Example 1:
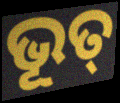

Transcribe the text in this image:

ଭୂତ୍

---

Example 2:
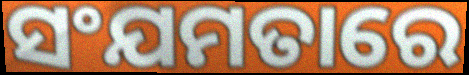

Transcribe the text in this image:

ସଂଯମତାରେ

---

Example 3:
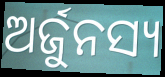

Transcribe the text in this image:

ଅର୍ଜୁନସ୍ୟ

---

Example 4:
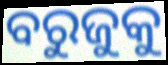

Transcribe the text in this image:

ବରୁଜୁକୁ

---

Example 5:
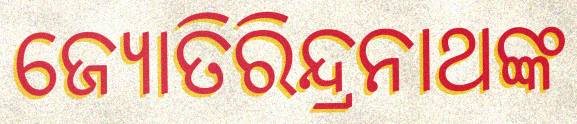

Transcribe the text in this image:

ଜ୍ୟୋତିରିନ୍ଦ୍ରନାଥଙ୍କ